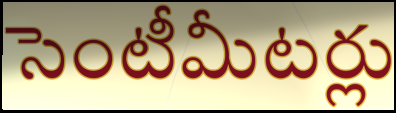
సెంటీమీటర్లు